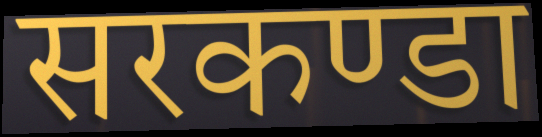
सरकण्डा